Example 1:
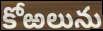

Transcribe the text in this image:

కోఱలును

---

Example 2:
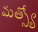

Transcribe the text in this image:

మత్స్యో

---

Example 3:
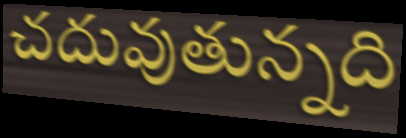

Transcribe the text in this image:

చదువుతున్నది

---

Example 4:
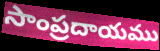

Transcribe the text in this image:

సాంప్రదాయము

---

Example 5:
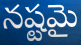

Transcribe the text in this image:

నష్టమై